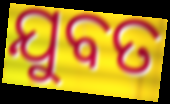
ଯୁବତ